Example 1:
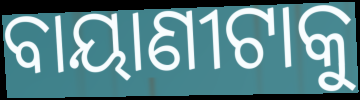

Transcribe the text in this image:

ବାୟାଣୀଟାକୁ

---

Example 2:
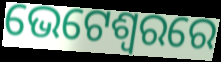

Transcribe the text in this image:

ଭେଟେଶ୍ୱରରେ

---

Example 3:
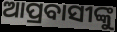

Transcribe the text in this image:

ଆପ୍ରବାସୀଙ୍କୁ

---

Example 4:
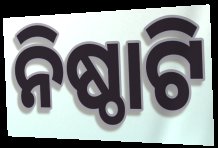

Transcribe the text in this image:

ନିଷ୍ଠାଟି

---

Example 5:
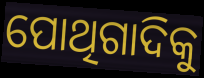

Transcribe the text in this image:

ପୋଥିଗାଦିକୁ